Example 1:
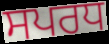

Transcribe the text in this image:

ਸਪਰਧ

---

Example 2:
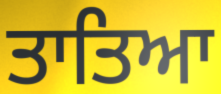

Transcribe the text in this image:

ਤਾਤਿਆ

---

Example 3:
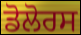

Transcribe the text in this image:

ਡੋਲੋਰਸ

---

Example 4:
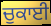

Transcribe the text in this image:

ਚੁਕਾਈ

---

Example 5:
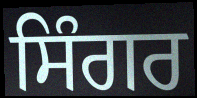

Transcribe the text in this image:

ਸਿੰਗਰ